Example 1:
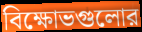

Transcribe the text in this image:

বিক্ষোভগুলোর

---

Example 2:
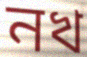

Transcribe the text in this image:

নখ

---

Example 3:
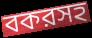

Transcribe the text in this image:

বকরসহ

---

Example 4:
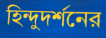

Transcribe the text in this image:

হিন্দুদর্শনের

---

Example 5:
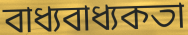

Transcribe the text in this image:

বাধ্যবাধ্যকতা